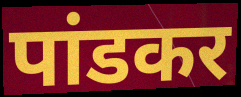
पांडकर